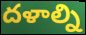
దళాల్ని